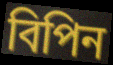
বিপিন